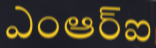
ఎంఆర్ఐ